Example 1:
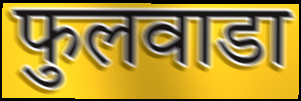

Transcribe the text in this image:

फुलवाडा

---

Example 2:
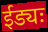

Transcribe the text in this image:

ईड्यः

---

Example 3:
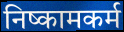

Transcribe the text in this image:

निष्कामकर्म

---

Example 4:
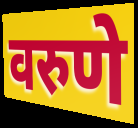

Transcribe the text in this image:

वरुणे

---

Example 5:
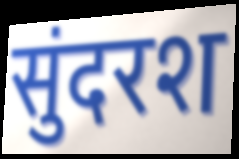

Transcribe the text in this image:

सुंदरश